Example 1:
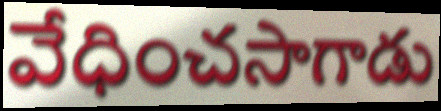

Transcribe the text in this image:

వేధించసాగాడు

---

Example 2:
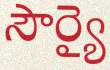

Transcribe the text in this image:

సౌర్యై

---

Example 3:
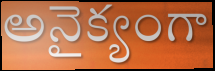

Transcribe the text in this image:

అనైక్యంగా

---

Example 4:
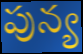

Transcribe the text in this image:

పున్య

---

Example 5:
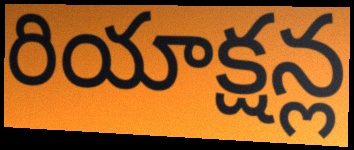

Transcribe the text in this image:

రియాక్షన్ల